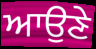
ਆਉਣੇ